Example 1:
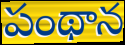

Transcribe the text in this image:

పంథాన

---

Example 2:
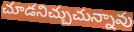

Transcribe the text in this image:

చూడనిచ్చుచున్నావు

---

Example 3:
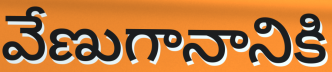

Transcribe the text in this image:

వేణుగానానికి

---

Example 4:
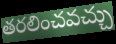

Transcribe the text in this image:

తరలించవచ్చు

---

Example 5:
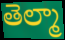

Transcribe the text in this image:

తెల్మా